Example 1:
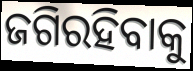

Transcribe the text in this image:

ଜଗିରହିବାକୁ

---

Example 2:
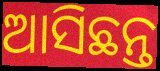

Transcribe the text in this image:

ଆସିଛନ୍ତ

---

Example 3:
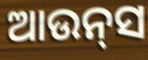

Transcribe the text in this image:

ଆଉନ୍‍ସ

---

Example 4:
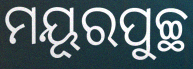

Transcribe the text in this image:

ମୟୂରପୁଚ୍ଛ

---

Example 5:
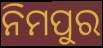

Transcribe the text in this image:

ନିମପୁର